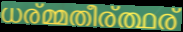
ധര്മ്മതീര്ത്ഥര്